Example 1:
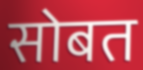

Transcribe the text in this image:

सोबत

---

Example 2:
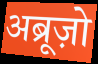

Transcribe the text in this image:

अब्रूज़ो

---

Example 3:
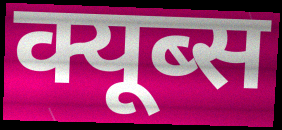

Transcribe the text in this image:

क्यूब्स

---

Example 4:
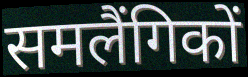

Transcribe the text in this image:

समलैंगिकों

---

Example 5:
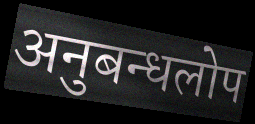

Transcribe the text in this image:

अनुबन्धलोप